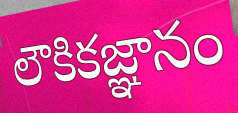
లౌకికజ్ఞానం